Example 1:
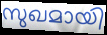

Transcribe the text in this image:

സുഖമായി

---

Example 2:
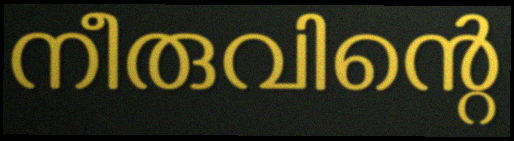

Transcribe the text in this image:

നീരുവിന്റെ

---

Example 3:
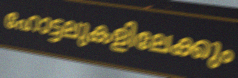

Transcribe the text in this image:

ഹോട്ടലുകളിലേക്കും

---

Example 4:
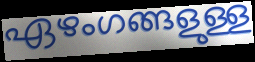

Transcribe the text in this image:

ഏഴംഗങ്ങളുള്ള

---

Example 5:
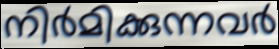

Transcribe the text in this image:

നിർമിക്കുന്നവർ